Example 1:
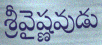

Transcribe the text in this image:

శ్రీవైష్ణవుడు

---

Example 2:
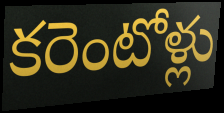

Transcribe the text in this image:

కరెంటోళ్లు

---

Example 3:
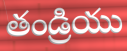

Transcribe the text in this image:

తండ్రియు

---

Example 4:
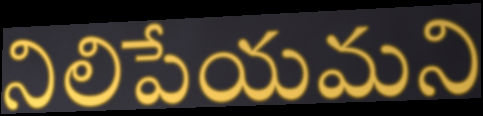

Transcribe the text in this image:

నిలిపేయమని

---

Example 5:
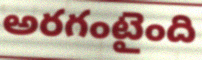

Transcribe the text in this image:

అరగంటైంది